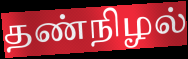
தண்நிழல்